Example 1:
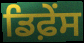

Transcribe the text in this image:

ਡਿਫ਼ੇਂਸ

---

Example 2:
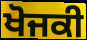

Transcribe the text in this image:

ਖੋਜਕੀ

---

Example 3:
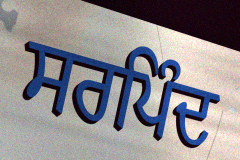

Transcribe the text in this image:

ਸਰਪਿੰਦ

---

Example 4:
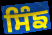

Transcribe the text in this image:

ਸਿੰਙ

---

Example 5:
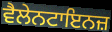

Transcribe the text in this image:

ਵੈਲੇਨਟਾਇਨਜ਼